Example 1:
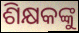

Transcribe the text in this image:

ଶିକ୍ଷକଙ୍କୁ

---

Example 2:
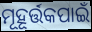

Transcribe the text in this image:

ମୂହୂର୍ତ୍ତକପାଇଁ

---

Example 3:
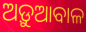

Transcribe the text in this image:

ଅଡ଼ୁଆବାଳ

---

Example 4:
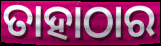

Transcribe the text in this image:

ତାହାଠାର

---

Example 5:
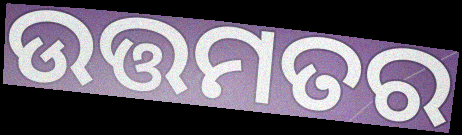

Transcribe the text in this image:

ଉତ୍ତମତର